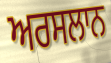
ਅਰਸਲਾਨ